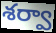
శర్వా